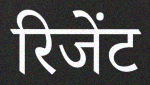
रिजेंट